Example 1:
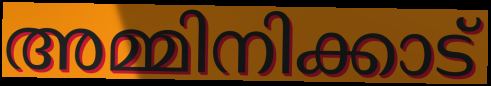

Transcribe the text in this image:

അമ്മിനിക്കാട്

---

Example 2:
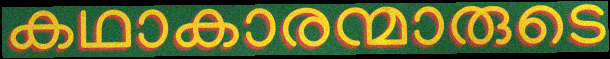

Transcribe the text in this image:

കഥാകാരന്മാരുടെ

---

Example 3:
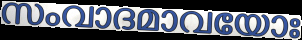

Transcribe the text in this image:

സംവാദമാവയോഃ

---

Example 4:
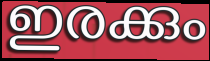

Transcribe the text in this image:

ഇരക്കും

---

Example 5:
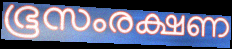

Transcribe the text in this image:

ഭൂസംരക്ഷണ